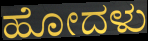
ಹೋದಳು